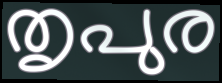
തൃപുര